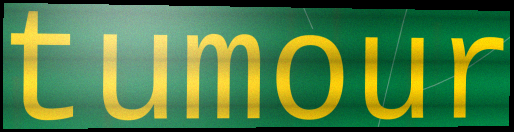
tumour